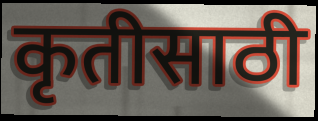
कृतीसाठी